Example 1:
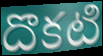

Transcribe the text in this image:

దొకటి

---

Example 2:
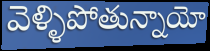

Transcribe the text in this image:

వెళ్ళిపోతున్నాయో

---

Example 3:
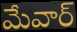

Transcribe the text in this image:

మేవార్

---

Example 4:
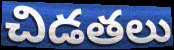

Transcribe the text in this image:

చిడతలు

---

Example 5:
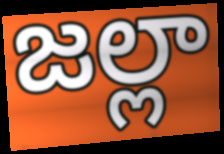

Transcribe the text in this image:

జల్లా